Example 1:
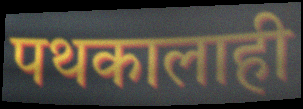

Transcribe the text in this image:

पथकालाही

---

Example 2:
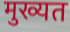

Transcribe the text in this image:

मुख्यत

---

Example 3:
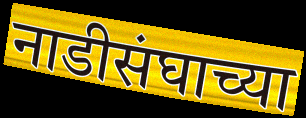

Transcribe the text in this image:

नाडीसंघाच्या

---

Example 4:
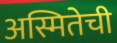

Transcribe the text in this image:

अस्मितेची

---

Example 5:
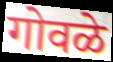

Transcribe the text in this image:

गोवळे